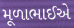
મૂળાભાઈએ